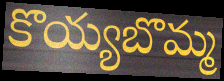
కొయ్యబొమ్మ